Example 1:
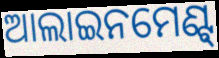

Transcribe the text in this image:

ଆଲାଇନମେଣ୍ଟ୍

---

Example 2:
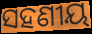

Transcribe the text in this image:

ସହଣୀୟ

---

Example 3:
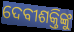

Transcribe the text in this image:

ଦେବୀଶକ୍ତିଙ୍କୁ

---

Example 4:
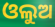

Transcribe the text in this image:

ଓଲୁଅ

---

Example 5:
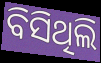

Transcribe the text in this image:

ବିସିଥିଲି